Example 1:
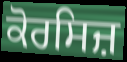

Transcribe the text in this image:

ਕੋਰਸਿਜ਼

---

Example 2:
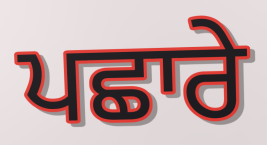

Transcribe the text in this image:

ਪਛਾਰੇ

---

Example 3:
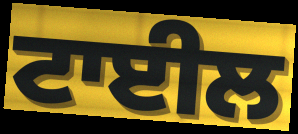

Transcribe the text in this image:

ਟਾਈਲ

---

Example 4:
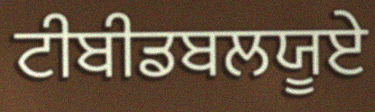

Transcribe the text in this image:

ਟੀਬੀਡਬਲਯੂਏ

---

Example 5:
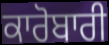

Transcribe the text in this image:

ਕਾਰੋਬਾਰੀ